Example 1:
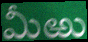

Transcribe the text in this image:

మీఱు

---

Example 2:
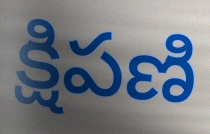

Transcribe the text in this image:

క్షిపణి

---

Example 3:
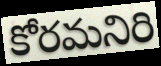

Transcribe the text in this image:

కోరమనిరి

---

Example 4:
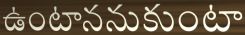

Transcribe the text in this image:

ఉంటాననుకుంటా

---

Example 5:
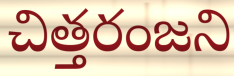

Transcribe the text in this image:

చిత్తరంజని